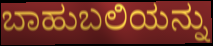
ಬಾಹುಬಲಿಯನ್ನು